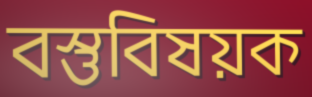
বস্তুবিষয়ক